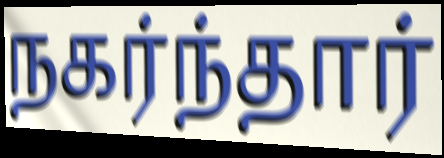
நகர்ந்தார்